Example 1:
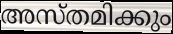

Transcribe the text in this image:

അസ്തമിക്കും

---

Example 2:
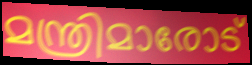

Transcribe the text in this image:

മന്ത്രിമാരോട്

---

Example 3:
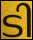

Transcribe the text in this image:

ടി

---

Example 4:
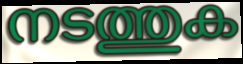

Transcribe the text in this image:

നടത്തുക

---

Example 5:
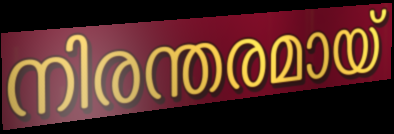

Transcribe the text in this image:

നിരന്തരമായ്